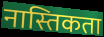
नास्तिकता